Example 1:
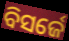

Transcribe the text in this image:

ବିସର୍ଜେ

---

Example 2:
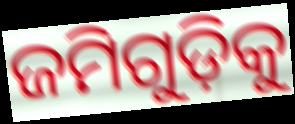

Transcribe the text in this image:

ଜମିଗୁଡ଼ିକୁ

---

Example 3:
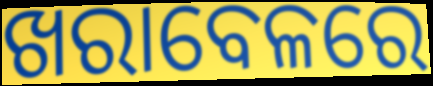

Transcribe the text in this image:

ଖରାବେଳରେ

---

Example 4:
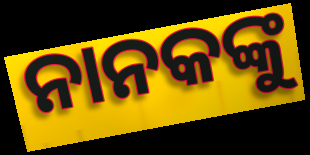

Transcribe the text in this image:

ନାନକଙ୍କୁ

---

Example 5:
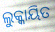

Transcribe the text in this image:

ଲୁକ୍କାୟିତ